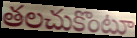
తలచుకొంటూ